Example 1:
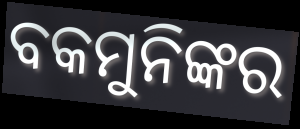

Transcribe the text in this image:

ବକମୁନିଙ୍କର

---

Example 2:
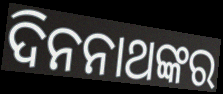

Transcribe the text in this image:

ଦିନନାଥଙ୍କର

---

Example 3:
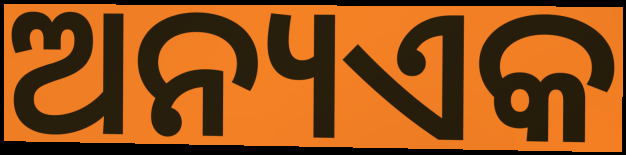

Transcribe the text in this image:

ଅନ୍ୟଏକ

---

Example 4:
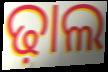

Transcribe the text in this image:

ଢ଼ାଲ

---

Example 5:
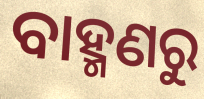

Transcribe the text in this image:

ବାହ୍ମଣରୁ